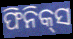
ଫିନିକ୍‍ସ